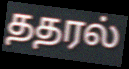
ததரல்